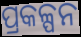
ପ୍ରକଳ୍ପନ